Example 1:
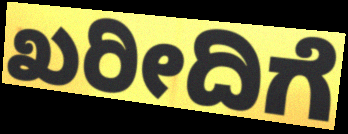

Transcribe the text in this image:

ಖರೀದಿಗೆ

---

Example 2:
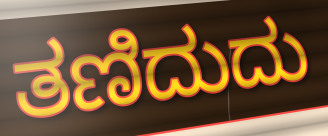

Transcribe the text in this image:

ತಣಿದುದು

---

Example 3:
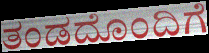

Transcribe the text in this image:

ತಂಡದೊಂದಿಗೆ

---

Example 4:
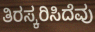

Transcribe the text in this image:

ತಿರಸ್ಕರಿಸಿದೆವು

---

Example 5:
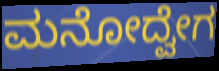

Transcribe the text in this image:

ಮನೋದ್ವೇಗ